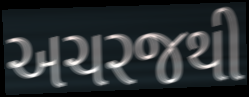
અચરજથી